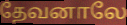
தேவனாலே